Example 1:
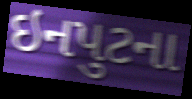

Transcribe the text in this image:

ઇનપુટના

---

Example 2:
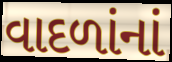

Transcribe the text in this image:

વાદળાંનાં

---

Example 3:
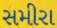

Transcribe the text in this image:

સમીરા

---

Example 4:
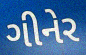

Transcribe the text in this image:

ગીનેર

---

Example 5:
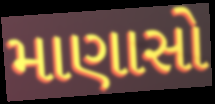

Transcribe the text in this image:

માણાસો